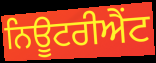
ਨਿਊਟਰੀਐਂਟ